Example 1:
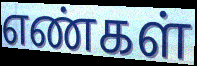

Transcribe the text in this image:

எண்கள்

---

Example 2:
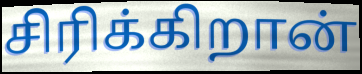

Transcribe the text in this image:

சிரிக்கிறான்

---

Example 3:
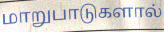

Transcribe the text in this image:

மாறுபாடுகளால்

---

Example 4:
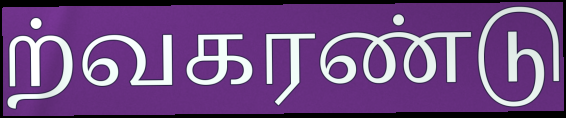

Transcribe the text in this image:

ற்வகரண்டு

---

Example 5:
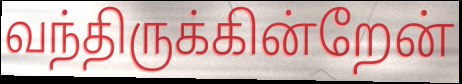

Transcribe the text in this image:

வந்திருக்கின்றேன்